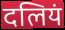
दलियं